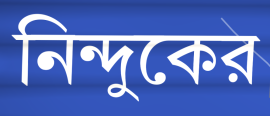
নিন্দুকের